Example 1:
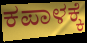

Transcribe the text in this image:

ಕಪಾಳಕ್ಕೆ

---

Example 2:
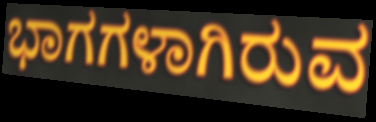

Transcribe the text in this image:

ಭಾಗಗಳಾಗಿರುವ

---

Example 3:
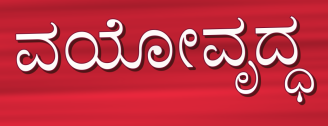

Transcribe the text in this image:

ವಯೋವೃದ್ಧ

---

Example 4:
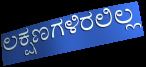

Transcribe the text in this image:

ಲಕ್ಷಣಗಳಿರಲಿಲ್ಲ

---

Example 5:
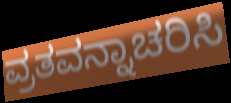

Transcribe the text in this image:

ವ್ರತವನ್ನಾಚರಿಸಿ